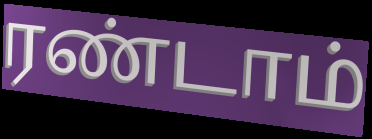
ரண்டாம்